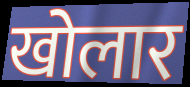
खोलार